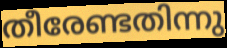
തീരേണ്ടതിന്നു